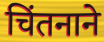
चिंतनाने